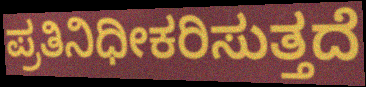
ಪ್ರತಿನಿಧೀಕರಿಸುತ್ತದೆ